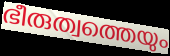
ഭീരുത്വത്തെയും